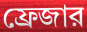
ফ্রেজার